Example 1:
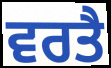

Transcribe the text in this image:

ਵਰਤੈ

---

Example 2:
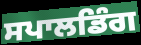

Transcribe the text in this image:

ਸਪਾਲਡਿੰਗ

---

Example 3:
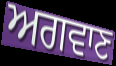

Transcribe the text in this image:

ਅਗਵਾਣ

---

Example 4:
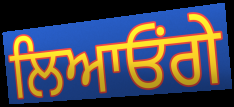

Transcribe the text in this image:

ਲਿਆਓਂਗੇ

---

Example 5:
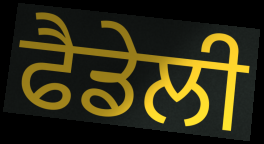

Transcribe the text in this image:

ਫੈਡੇਲੀ